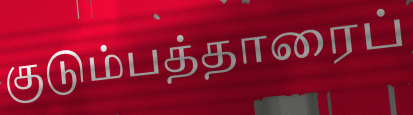
குடும்பத்தாரைப்